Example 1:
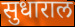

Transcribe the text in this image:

सुधाराल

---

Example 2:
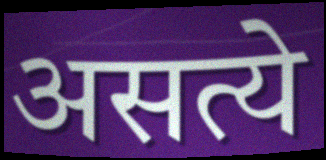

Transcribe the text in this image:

असत्ये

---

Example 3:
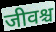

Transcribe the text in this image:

जीवश्च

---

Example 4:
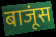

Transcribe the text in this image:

बाजूंस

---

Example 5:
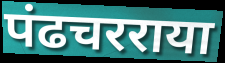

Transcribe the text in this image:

पंढचरराया